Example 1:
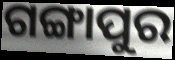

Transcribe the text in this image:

ଗଙ୍ଗାପୁର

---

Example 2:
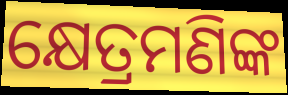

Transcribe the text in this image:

କ୍ଷେତ୍ରମଣିଙ୍କ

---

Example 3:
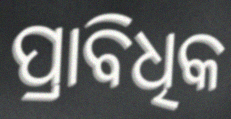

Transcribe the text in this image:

ପ୍ରାବିଧିକ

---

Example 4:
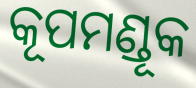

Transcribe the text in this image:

କୂପମଣ୍ଡୂକ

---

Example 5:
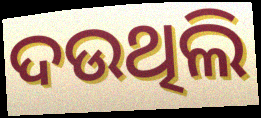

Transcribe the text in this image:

ଦଉଥିଲି